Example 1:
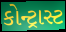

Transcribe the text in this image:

કોન્ટ્રાસ્ટ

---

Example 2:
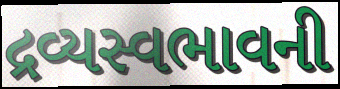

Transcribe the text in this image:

દ્રવ્યસ્વભાવની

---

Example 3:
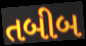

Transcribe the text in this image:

તબીબ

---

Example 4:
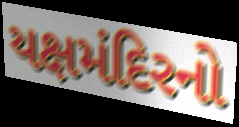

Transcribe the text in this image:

યક્ષમંદિરનો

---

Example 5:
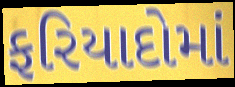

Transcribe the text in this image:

ફરિયાદોમાં